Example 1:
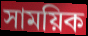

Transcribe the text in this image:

সাময়িক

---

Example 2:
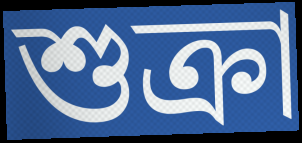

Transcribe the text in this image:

শুক্ৰা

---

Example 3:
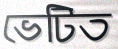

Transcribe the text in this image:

ভেটিত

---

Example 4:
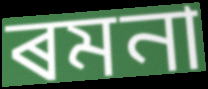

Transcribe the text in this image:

ৰমনা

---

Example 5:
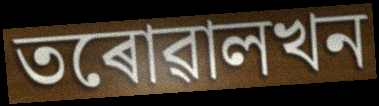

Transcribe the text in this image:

তৰোৱালখন